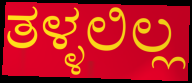
ತಳ್ಳಲಿಲ್ಲ